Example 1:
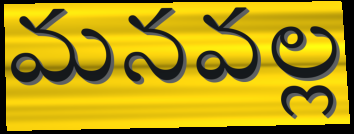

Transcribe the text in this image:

మనవల్ల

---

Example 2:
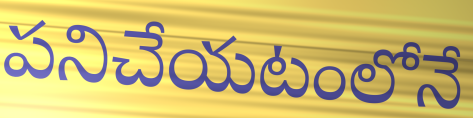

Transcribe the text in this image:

పనిచేయటంలోనే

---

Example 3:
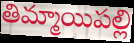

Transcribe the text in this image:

తిమ్మాయిపల్లి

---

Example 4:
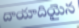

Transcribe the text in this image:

దాయాదియైన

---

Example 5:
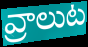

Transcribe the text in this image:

వ్రాలుట